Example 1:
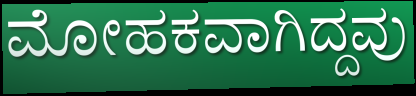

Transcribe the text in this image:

ಮೋಹಕವಾಗಿದ್ದವು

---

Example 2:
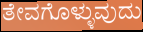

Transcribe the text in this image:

ತೇವಗೊಳ್ಳುವುದು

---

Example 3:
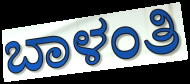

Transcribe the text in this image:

ಬಾಳಂತಿ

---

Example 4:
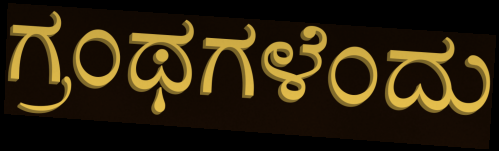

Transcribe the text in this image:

ಗ್ರಂಥಗಳೆಂದು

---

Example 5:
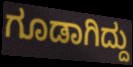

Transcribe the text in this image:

ಗೂಡಾಗಿದ್ದು